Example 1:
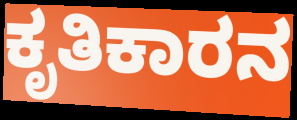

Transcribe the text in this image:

ಕೃತಿಕಾರನ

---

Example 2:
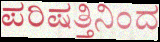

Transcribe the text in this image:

ಪರಿಷತ್ತಿನಿಂದ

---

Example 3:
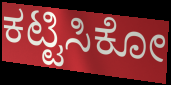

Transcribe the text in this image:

ಕಟ್ಟಿಸಿಕೋ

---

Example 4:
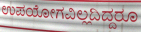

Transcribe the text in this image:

ಉಪಯೋಗವಿಲ್ಲದಿದ್ದರೂ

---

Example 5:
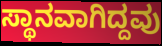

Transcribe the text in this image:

ಸ್ಥಾನವಾಗಿದ್ದವು